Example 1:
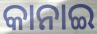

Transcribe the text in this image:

କାନାଇ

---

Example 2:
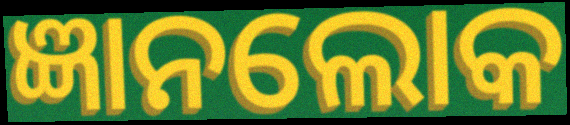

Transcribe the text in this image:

ଜ୍ଞାନଲୋକ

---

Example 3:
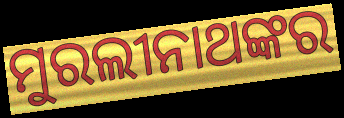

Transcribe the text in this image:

ମୁରଲୀନାଥଙ୍କର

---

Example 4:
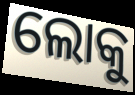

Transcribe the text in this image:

ଲୋକୁ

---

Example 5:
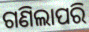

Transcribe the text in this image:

ଗଣିଲାପରି